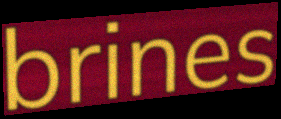
brines